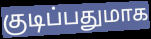
குடிப்பதுமாக